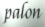
palon